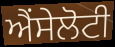
ਐਂਸੇਲੋਟੀ